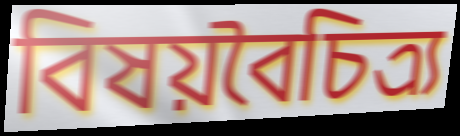
বিষয়বৈচিত্র্য